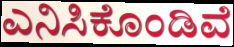
ಎನಿಸಿಕೊಂಡಿವೆ